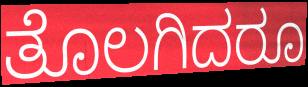
ತೊಲಗಿದರೂ